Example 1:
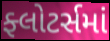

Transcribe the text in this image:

ફ્લોટર્સમાં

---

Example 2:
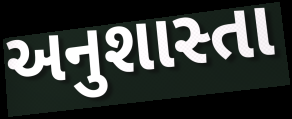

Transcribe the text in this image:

અનુશાસ્તા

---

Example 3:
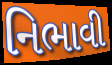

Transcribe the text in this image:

નિભાવી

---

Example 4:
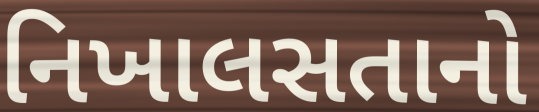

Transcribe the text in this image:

નિખાલસતાનો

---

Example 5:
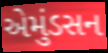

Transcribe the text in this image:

એમુંડસન